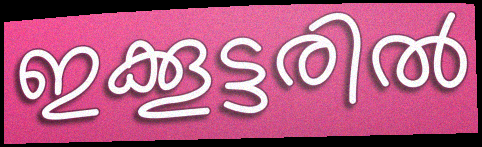
ഇക്കൂട്ടരിൽ